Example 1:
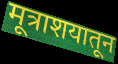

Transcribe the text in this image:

मूत्राशयातून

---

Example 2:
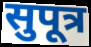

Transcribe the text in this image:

सुपूत्र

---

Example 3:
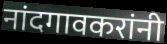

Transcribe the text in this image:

नांदगावकरांनी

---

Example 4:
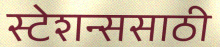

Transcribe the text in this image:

स्टेशन्ससाठी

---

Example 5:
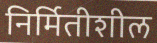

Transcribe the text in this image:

निर्मितीशील